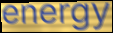
energy